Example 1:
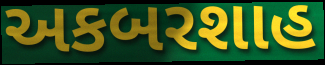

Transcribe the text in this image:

અકબરશાહ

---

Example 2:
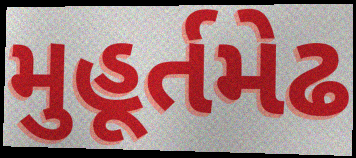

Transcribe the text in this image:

મુહૂર્તમેઢ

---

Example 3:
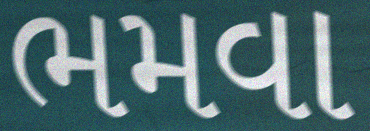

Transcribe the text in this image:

ભમવા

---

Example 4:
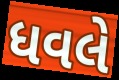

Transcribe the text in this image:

ધવલે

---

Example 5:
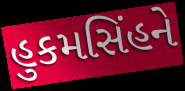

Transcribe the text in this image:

હુકમસિંહને